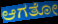
ಆಗತೋ